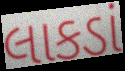
લાકડાં